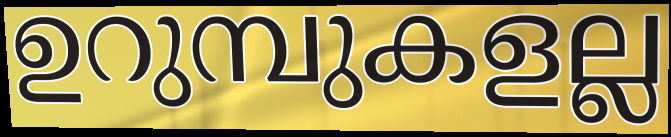
ഉറുമ്പുകളല്ല